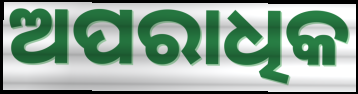
ଅପରାଧିକ